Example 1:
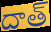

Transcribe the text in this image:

దాత్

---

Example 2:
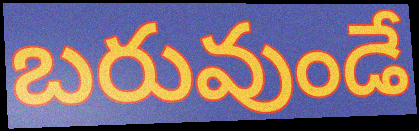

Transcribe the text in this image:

బరువుండే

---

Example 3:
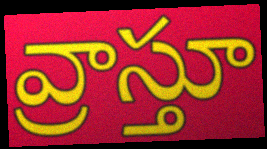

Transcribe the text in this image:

వ్రాస్తూ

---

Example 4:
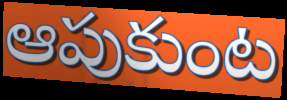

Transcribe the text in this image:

ఆపుకుంట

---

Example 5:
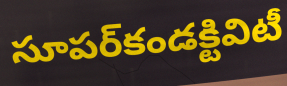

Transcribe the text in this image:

సూపర్‌కండక్టివిటీ